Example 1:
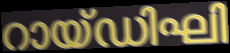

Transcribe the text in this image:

റായ്ഡിഘി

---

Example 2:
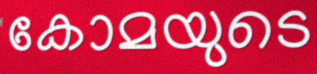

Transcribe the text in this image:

കോമയുടെ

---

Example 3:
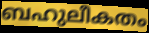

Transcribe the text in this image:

ബഹുലീകതം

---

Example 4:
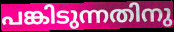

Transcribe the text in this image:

പങ്കിടുന്നതിനു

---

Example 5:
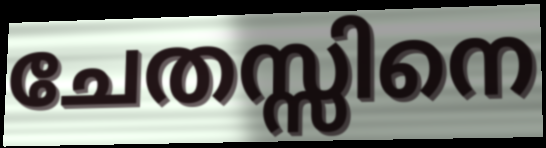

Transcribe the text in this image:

ചേതസ്സിനെ